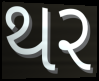
થર